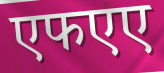
एफएए